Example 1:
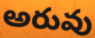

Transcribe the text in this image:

అరువు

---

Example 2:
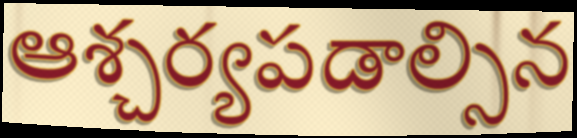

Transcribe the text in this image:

ఆశ్చర్యపడాల్సిన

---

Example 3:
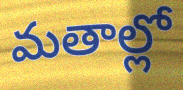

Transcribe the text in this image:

మతాల్లో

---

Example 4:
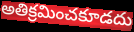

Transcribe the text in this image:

అతిక్రమించకూడదు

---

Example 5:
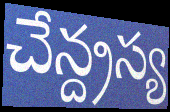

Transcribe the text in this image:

చేన్ద్రస్య